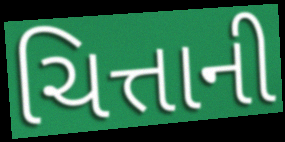
ચિત્તાની